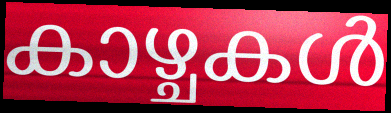
കാഴ്ചകൾ